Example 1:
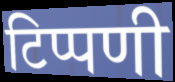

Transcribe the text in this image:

टिप्पणी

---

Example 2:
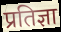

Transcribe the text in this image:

प्रतिज्ञा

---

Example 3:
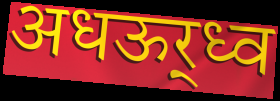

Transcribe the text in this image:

अधऊर्ध्व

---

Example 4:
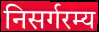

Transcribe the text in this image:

निसर्गरम्य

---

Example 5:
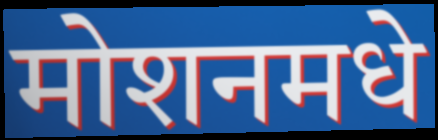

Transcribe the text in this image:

मोशनमधे